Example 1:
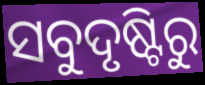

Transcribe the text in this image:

ସବୁଦୃଷ୍ଟିରୁ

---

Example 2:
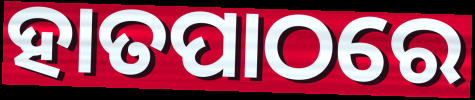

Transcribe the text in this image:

ହାତପାଠରେ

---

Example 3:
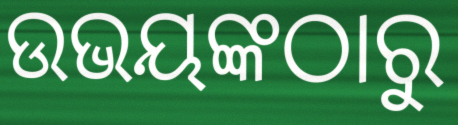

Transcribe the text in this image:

ଉଭୟଙ୍କଠାରୁ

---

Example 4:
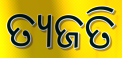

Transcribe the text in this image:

ତ୍ୟଜତି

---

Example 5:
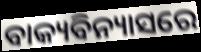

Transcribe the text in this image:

ବାକ୍ୟବିନ୍ୟାସରେ